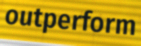
outperform